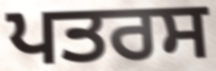
ਪਤਰਸ